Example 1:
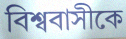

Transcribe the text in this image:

বিশ্ববাসীকে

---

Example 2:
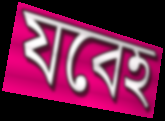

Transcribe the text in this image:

যবেহ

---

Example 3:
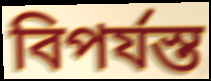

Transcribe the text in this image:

বিপর্যস্ত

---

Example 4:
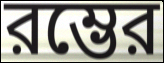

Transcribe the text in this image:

রম্ভের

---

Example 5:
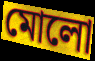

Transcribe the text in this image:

মোলো